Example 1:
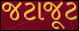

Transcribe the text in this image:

જટાજૂટ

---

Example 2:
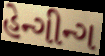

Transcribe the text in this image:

હેન્ગીન્ગ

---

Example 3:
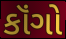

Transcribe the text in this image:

કૉંગો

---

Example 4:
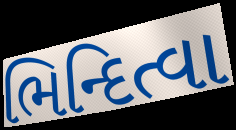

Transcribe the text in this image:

ભિન્દિત્વા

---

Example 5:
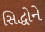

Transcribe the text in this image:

સિદ્ધોને